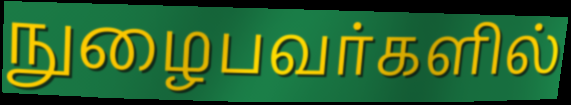
நுழைபவர்களில்